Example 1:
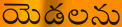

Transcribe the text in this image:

యెడలను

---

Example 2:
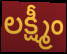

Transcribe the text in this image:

లక్ష్మీం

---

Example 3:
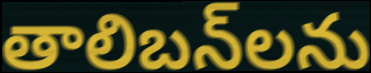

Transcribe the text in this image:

తాలిబన్‌లను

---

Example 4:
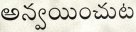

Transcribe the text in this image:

అన్వయించుట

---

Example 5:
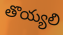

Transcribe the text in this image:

తొయ్యలి